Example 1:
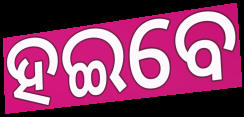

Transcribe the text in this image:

ହଇବେ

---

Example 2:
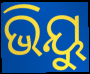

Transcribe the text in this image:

ଭିୟୁ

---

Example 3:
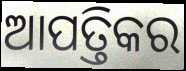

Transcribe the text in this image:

ଆପତ୍ତିକର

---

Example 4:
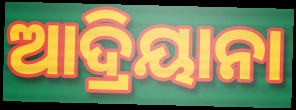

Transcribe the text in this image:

ଆଦ୍ରିୟାନା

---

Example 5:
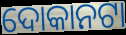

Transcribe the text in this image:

ଦୋକାନଟା